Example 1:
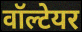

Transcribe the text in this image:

वॉल्टेयर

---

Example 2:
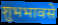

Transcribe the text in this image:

शुभभावसे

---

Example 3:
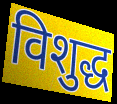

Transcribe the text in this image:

विशुद्ध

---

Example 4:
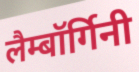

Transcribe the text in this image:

लैम्बॉर्गिनी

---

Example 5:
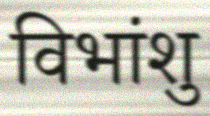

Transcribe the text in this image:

विभांशु